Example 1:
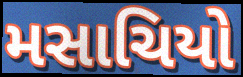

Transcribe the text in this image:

મસાચિયો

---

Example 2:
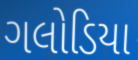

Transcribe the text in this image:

ગલોડિયા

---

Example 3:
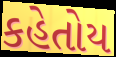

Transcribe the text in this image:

કહેતોય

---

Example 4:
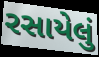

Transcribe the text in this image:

રસાયેલું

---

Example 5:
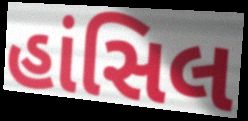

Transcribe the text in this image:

હાંસિલ